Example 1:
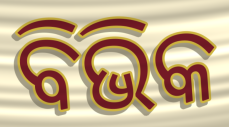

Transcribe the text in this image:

ବିଭିକ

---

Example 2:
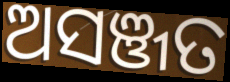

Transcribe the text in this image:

ଅସଞ୍ଜତ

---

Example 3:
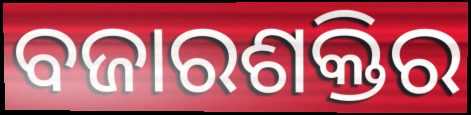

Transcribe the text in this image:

ବଜାରଶକ୍ତିର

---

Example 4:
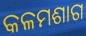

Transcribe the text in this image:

କଳମଶାଗ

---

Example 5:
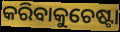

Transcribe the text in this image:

କରିବାକୁଚେଷ୍ଟା